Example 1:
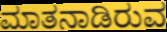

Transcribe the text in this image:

ಮಾತನಾಡಿರುವ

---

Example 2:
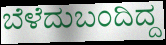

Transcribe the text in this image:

ಬೆಳೆದುಬಂದಿದ್ದ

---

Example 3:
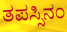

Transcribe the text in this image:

ತಪಸ್ಸಿನಂ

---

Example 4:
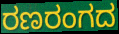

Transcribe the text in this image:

ರಣರಂಗದ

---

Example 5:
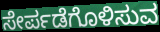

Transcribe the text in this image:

ಸೇರ್ಪಡೆಗೊಳಿಸುವ